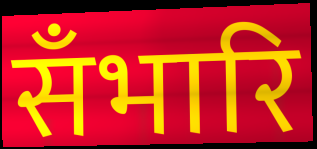
सँभारि